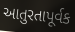
આતુરતાપૂર્વક